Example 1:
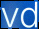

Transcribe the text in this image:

vd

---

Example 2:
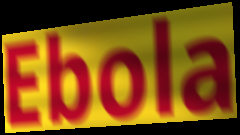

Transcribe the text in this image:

Ebola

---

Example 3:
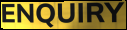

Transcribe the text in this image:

ENQUIRY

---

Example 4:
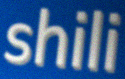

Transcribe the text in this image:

shili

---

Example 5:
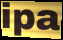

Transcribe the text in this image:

ipa